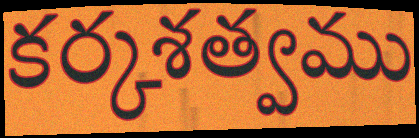
కర్కశత్వము